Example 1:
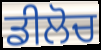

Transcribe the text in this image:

ਡੀਲੋਚ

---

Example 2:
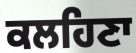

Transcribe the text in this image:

ਕਲਹਿਣਾ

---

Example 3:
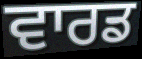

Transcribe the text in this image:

ਵਾਰਡ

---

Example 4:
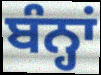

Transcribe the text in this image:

ਬੰਨ੍ਹਾਂ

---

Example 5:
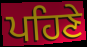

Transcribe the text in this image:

ਪਹਿਣੇ